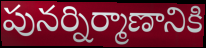
పునర్నిర్మాణానికి